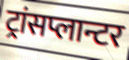
ट्रांसप्लान्टर